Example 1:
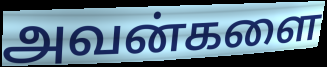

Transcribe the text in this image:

அவன்களை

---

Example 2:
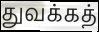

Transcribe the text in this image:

துவக்கத்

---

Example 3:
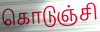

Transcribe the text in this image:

கொடுஞ்சி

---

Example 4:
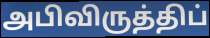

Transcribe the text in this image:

அபிவிருத்திப்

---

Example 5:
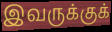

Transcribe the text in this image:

இவருக்குக்